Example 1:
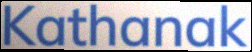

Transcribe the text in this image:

Kathanak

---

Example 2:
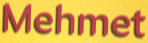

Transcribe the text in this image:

Mehmet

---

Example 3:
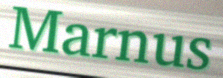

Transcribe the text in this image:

Marnus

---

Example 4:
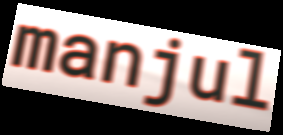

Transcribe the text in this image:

manjul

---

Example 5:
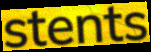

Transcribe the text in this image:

stents